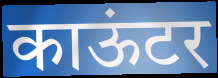
काऊंटर